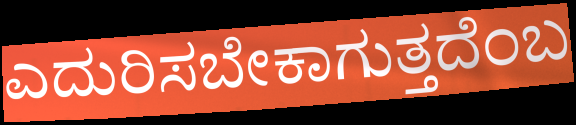
ಎದುರಿಸಬೇಕಾಗುತ್ತದೆಂಬ